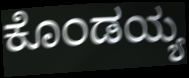
ಕೊಂಡಯ್ಯ